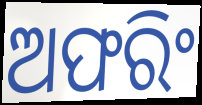
ଅଫରିଂ